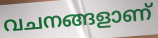
വചനങ്ങളാണ്